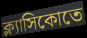
ক্ল্যাসিকোতে